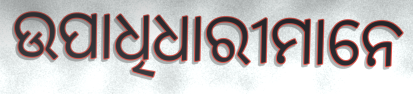
ଉପାଧିଧାରୀମାନେ